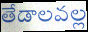
తేడాలవల్ల